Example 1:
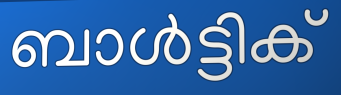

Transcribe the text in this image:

ബാൾട്ടിക്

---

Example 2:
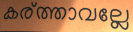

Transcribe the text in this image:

കര്ത്താവല്ലേ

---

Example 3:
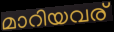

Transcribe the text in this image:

മാറിയവര്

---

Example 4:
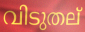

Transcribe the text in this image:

വിടുതല്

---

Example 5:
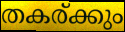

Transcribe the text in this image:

തകര്ക്കും